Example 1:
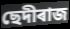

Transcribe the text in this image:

ছেদীৰাজ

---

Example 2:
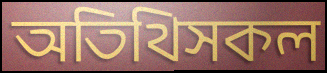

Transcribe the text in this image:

অতিথিসকল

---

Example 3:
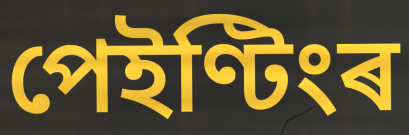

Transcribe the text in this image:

পেইণ্টিংৰ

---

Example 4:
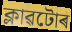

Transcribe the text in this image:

ক্লাৱটোৰ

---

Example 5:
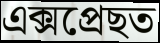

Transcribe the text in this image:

এক্সপ্ৰেছত